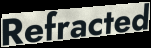
Refracted